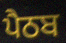
ਪੈਠਬ